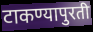
टाकण्यापुरती